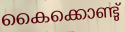
കൈക്കൊണ്ടു്